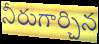
నీరుగార్చిన